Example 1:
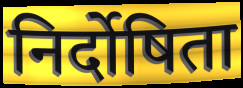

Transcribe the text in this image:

निर्दोषिता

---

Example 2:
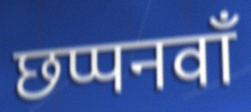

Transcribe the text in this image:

छप्पनवाँ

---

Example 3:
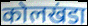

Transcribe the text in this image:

कोलखंडा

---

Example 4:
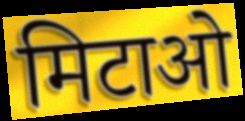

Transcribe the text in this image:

मिटाओ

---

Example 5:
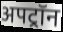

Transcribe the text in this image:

अपट्रॉन